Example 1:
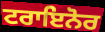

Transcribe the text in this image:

ਟਰਾਇਨੋਰ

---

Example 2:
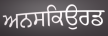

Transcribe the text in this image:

ਅਨਸਕਿਉਰਡ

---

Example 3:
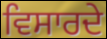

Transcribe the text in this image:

ਵਿਸਾਰਦੇ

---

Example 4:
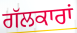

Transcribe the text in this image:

ਗੱਲਕਾਰਾਂ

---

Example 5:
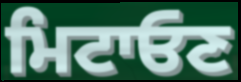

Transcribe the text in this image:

ਮਿਟਾਓਣ